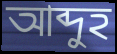
আব্দুহ